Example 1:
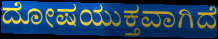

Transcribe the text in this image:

ದೋಷಯುಕ್ತವಾಗಿದೆ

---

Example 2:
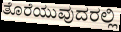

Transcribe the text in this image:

ತೊರೆಯುವುದರಲ್ಲಿ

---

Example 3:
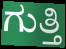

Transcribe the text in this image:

ಗುತ್ತಿ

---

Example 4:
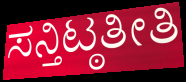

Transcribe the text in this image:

ಸನ್ತಿಟ್ಠತೀತಿ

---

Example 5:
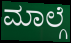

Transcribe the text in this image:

ಮಾಲ್ಗೆ